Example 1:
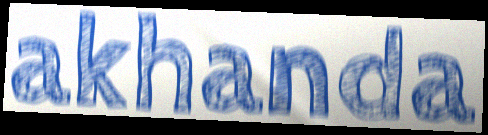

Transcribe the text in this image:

akhanda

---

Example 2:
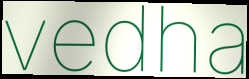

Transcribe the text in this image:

vedha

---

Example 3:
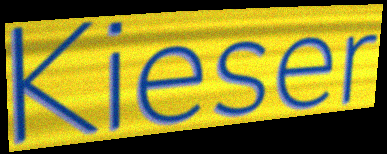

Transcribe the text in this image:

Kieser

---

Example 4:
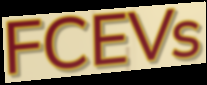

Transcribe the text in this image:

FCEVs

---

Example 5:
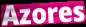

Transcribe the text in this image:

Azores